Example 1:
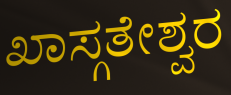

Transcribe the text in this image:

ಖಾಸ್ಗತೇಶ್ವರ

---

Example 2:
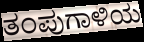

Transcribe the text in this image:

ತಂಪುಗಾಳಿಯ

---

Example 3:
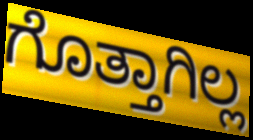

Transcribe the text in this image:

ಗೊತ್ತಾಗಿಲ್ಲ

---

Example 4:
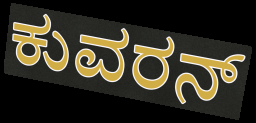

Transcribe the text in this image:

ಕುವರನ್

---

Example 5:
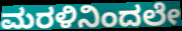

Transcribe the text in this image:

ಮರಳಿನಿಂದಲೇ